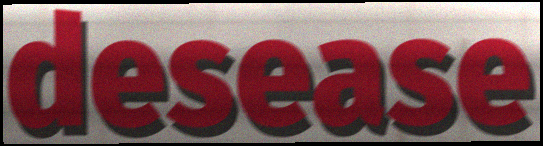
desease